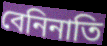
বেনিনাতি